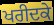
ਖਰੀਦਕੇ